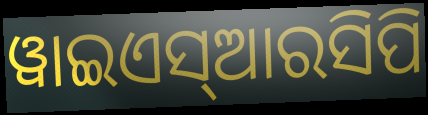
ୱାଇଏସ୍ଆରସିପି